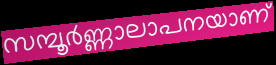
സമ്പൂർണ്ണാലാപനയാണ്